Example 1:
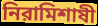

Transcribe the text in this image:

নিরামিশাষী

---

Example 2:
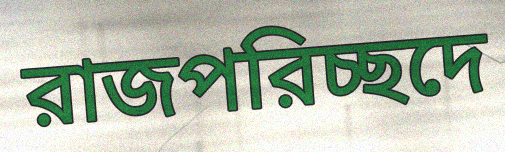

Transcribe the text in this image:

রাজপরিচ্ছদে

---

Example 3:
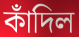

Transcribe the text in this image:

কাঁদিল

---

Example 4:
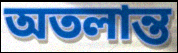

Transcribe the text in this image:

অতলান্ত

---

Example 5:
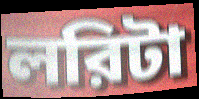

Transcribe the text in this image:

লরিটা